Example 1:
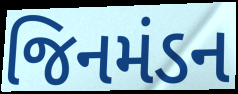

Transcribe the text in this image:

જિનમંડન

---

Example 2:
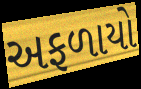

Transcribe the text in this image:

અફળાયો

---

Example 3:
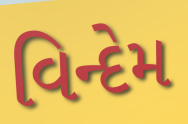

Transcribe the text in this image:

વિન્દેમ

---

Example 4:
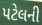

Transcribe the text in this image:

પટેલની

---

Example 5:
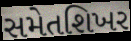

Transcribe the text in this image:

સમેતશિખર